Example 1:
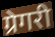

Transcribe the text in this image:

ग्रेगरी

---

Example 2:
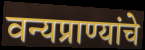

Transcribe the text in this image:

वन्यप्राण्यांचे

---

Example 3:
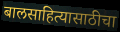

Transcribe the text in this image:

बालसाहित्यासाठीचा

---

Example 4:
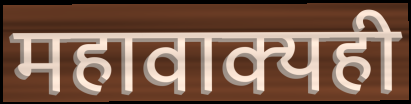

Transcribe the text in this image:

महावाक्यही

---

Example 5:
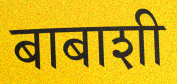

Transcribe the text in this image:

बाबाशी